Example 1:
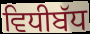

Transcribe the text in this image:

ਵਿਧੀਬੱਧ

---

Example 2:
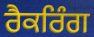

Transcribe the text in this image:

ਰੈਕਰਿੰਗ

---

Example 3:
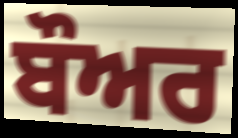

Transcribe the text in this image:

ਬੌਅਰ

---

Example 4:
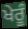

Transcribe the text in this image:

ਖੇਰੂੰ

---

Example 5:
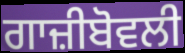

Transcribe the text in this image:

ਗਾਜ਼ੀਬੋਵਲੀ